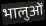
भालुओं